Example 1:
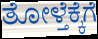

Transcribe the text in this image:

ತೋಳ್ತೆಕ್ಕೆಗೆ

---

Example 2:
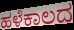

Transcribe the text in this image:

ಹಳೆಕಾಲದ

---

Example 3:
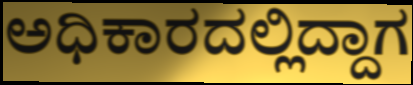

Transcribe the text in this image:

ಅಧಿಕಾರದಲ್ಲಿದ್ದಾಗ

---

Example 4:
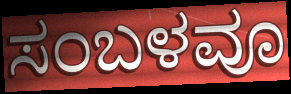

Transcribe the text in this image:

ಸಂಬಳವೂ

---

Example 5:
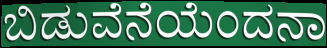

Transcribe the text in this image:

ಬಿಡುವೆನೆಯೆಂದನಾ